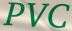
PVC